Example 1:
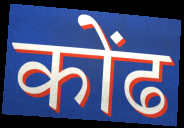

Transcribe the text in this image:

कोंढ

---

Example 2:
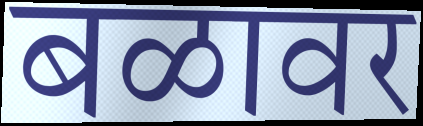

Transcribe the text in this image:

बळावर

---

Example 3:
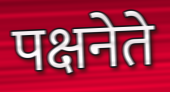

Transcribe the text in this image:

पक्षनेते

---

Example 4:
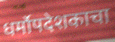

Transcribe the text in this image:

धर्मोपदेशकाचा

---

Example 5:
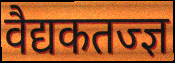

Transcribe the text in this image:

वैद्यकतज्ज्ञ